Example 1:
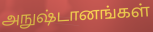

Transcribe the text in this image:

அநுஷ்டானங்கள்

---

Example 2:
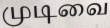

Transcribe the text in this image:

முடிவை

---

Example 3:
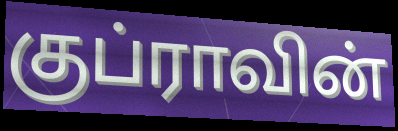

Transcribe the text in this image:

குப்ராவின்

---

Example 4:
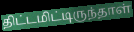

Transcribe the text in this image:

திட்டமிட்டிருந்தாள்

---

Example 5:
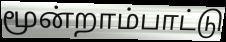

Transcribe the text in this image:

மூன்றாம்பாட்டு